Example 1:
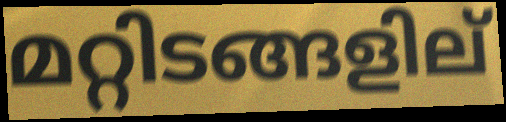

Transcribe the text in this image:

മറ്റിടങ്ങളില്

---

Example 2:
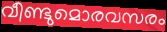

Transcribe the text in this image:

വീണ്ടുമൊരവസരം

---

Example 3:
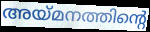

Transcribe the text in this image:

അയ്മനത്തിന്റെ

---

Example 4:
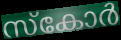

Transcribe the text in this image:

സ്‌കോർ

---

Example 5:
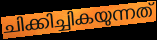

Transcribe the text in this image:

ചിക്കിച്ചികയുന്നത്